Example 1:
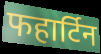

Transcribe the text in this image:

फहार्टिन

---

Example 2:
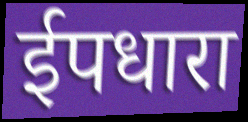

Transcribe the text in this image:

ईपधारा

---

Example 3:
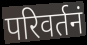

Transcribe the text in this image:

परिवर्तनं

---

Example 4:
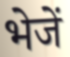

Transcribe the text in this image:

भेजें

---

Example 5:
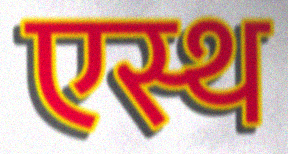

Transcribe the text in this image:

एस्थ